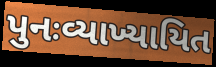
પુનઃવ્યાખ્યાયિત